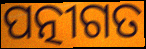
ପତ୍ନୀଗତ